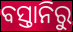
ବସ୍ତାନିରୁ